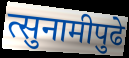
त्सुनामीपुढे